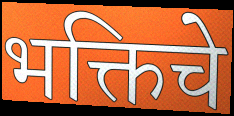
भक्तिचे